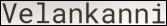
Velankanni